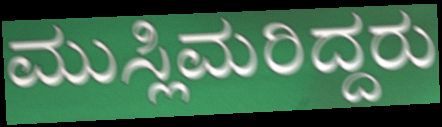
ಮುಸ್ಲಿಮರಿದ್ದರು